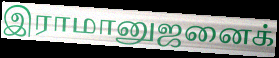
இராமானுஜனைக்